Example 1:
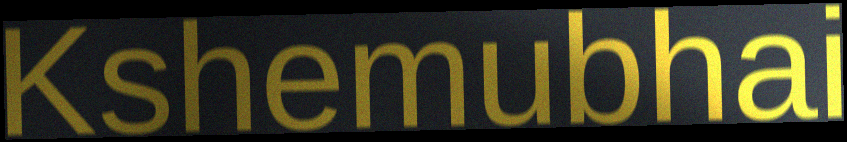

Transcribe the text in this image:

Kshemubhai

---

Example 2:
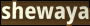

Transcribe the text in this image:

shewaya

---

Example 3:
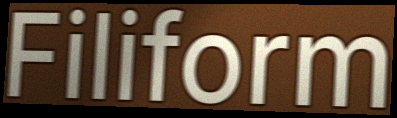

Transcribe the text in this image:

Filiform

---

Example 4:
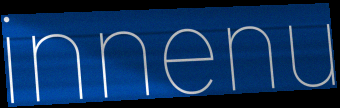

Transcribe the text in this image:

innenu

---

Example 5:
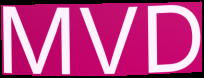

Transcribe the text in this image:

MVD